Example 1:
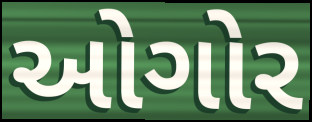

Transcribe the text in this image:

ઓગોર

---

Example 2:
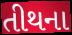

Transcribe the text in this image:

તીથના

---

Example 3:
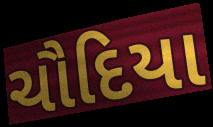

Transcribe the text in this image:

ચૌદિયા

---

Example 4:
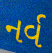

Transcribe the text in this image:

નર્વ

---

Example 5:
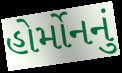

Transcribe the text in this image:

હોર્મોનનું